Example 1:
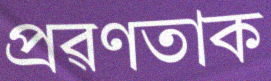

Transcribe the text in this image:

প্ৰৱণতাক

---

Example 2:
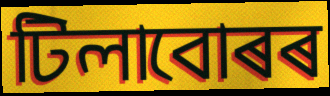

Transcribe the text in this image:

টিলাবোৰৰ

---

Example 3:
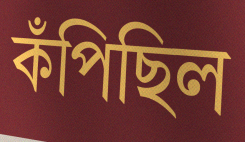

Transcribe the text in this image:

কঁপিছিল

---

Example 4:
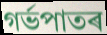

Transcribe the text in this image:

গৰ্ভপাতৰ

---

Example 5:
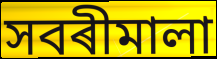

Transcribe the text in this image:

সবৰীমালা